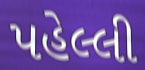
પહેલ્લી